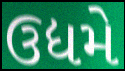
ઉદ્યમે